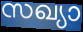
സഖ്യാ